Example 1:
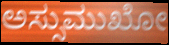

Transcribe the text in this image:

ಅಸ್ಸುಮುಖೋ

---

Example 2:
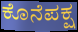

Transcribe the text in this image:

ಕೊನೆಪಕ್ಷ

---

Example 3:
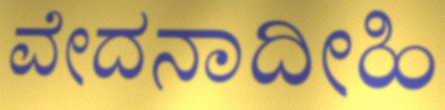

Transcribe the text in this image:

ವೇದನಾದೀಹಿ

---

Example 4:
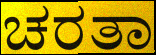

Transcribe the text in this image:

ಚರತಾ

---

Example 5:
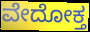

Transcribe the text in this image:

ವೇದೋಕ್ತ